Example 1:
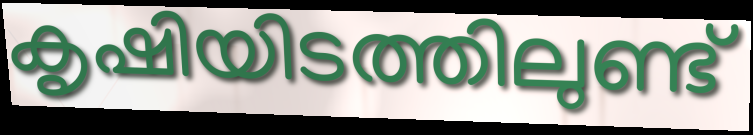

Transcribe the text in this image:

കൃഷിയിടത്തിലുണ്ട്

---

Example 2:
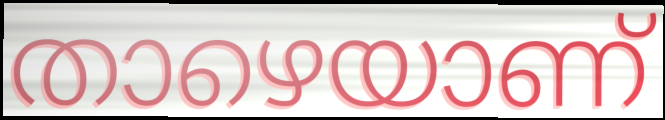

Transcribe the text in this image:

താഴെയാണ്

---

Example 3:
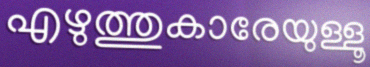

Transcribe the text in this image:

എഴുത്തുകാരേയുള്ളൂ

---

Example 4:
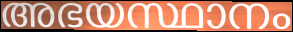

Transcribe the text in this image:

അഭയസ്ഥാനം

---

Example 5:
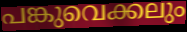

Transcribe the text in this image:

പങ്കുവെക്കലും